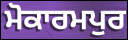
ਮੋਕਾਰਮਪੁਰ